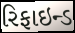
રિફાઇન્ડ